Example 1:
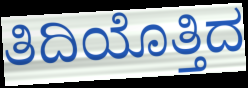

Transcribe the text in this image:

ತಿದಿಯೊತ್ತಿದ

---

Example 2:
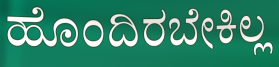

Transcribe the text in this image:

ಹೊಂದಿರಬೇಕಿಲ್ಲ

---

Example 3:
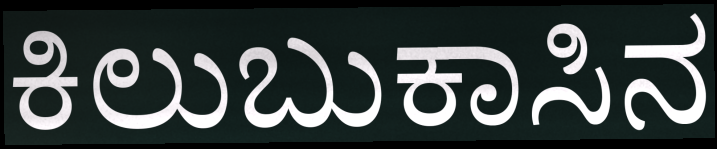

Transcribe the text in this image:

ಕಿಲುಬುಕಾಸಿನ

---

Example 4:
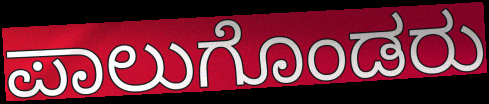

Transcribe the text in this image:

ಪಾಲುಗೊಂಡರು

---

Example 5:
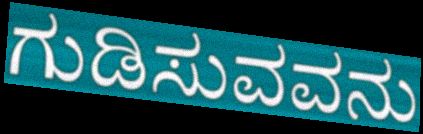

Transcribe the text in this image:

ಗುಡಿಸುವವನು